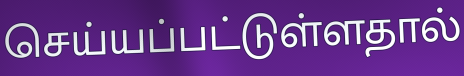
செய்யப்பட்டுள்ளதால்